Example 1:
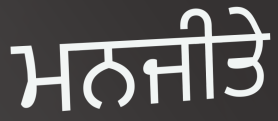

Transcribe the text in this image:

ਮਨਜੀਤੇ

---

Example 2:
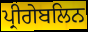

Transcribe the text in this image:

ਪ੍ਰੀਗੇਬਲਿਨ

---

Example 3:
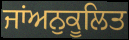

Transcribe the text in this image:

ਜਾਂਅਨੁਕੂਲਿਤ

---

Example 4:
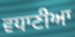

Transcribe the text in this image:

ਵਧਾਣੀਆ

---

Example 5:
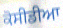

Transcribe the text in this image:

ਕੋਸੀਡੀਆ